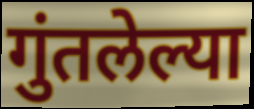
गुंतलेल्या